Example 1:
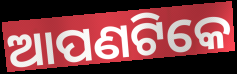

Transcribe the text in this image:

ଆପଣଟିକେ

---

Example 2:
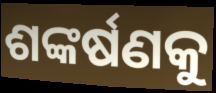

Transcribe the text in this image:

ଶଙ୍କର୍ଷଣକୁ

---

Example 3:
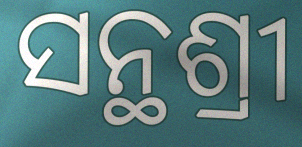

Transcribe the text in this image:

ସନ୍ଥଶ୍ରୀ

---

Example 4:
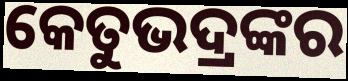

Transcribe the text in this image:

କେତୁଭଦ୍ରଙ୍କର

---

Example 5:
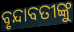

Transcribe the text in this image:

ବୃନ୍ଦାବତୀଙ୍କୁ